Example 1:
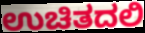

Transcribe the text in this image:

ಉಚಿತದಲಿ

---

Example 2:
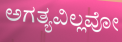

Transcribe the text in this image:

ಅಗತ್ಯವಿಲ್ಲವೋ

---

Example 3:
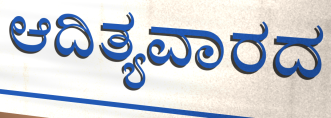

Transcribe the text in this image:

ಆದಿತ್ಯವಾರದ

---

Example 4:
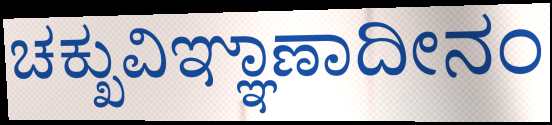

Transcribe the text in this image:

ಚಕ್ಖುವಿಞ್ಞಾಣಾದೀನಂ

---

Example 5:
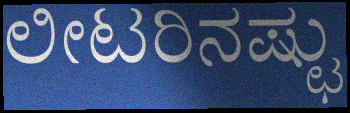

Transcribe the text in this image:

ಲೀಟರಿನಷ್ಟು